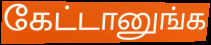
கேட்டானுங்க